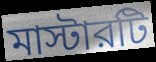
মাস্টারটি